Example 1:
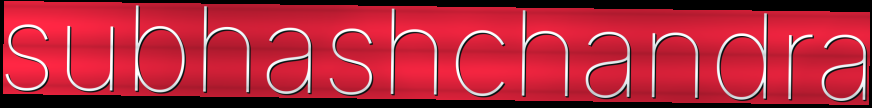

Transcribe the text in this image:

subhashchandra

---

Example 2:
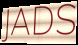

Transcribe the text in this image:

JADS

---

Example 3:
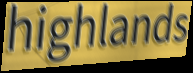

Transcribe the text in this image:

highlands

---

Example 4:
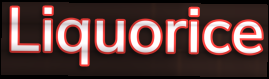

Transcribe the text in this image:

Liquorice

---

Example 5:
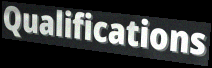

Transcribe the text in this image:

Qualifications